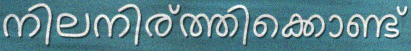
നിലനിര്ത്തിക്കൊണ്ട്